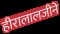
हीरालालजीने